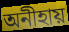
অনীহায়